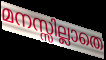
മനസ്സില്ലാതെ